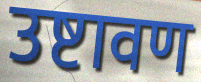
उष्टावण